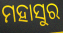
ମହାସୁର